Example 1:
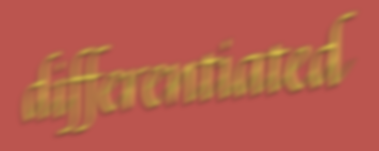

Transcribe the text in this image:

differentiated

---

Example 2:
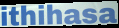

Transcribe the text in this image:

ithihasa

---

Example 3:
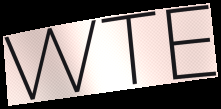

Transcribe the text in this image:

WTE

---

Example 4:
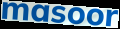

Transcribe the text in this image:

masoor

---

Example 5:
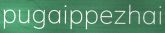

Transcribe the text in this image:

pugaippezhai